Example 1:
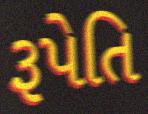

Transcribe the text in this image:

રૂપેતિ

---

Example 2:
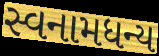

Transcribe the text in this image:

સ્વનામધન્ય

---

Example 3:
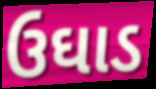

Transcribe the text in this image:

ઉઘાડ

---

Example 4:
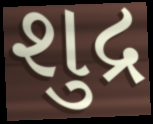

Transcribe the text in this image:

શુદ્ર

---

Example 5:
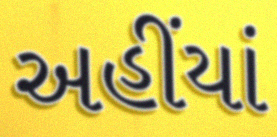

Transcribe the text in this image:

અહીંયાં